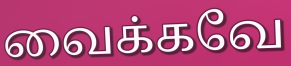
வைக்கவே